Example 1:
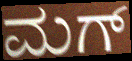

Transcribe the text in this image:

ಮಗ್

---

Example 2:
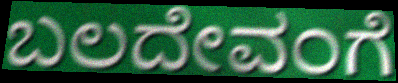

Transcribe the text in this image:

ಬಲದೇವಂಗೆ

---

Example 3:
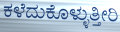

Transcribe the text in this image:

ಕಳೆದುಕೊಳ್ಳುತ್ತೀರಿ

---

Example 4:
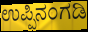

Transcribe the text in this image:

ಉಪ್ಪಿನಂಗಡಿ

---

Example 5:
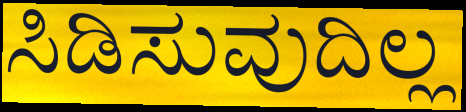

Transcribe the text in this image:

ಸಿಡಿಸುವುದಿಲ್ಲ